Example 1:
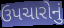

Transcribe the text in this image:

ઉપચારોનું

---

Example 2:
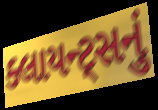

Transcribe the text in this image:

ક્લાયન્ટ્સનું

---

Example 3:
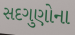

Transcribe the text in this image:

સદગુણોના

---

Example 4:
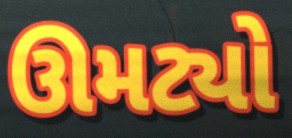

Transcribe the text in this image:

ઊમટ્યો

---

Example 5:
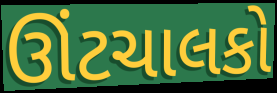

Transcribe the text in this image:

ઊંટચાલકો